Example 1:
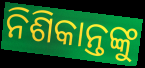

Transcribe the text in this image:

ନିଶିକାନ୍ତଙ୍କୁ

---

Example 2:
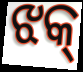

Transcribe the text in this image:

ଝକ୍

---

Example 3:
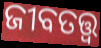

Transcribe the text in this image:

ଜୀବତତ୍ତ୍ୱ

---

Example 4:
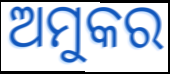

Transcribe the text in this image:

ଅମୁକର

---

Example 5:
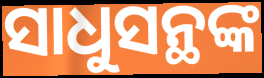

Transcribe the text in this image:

ସାଧୁସନ୍ଥଙ୍କ